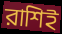
রাশিই